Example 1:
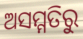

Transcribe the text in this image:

ଅସମ୍ମତିରୁ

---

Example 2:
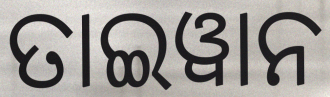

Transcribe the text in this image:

ତାଇୱାନ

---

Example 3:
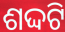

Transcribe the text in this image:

ଶଦ୍ଦଟି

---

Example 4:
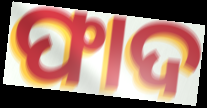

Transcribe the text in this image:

ଫାଦ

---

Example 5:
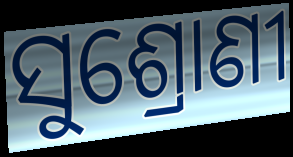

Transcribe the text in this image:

ସୁଶ୍ରୋଣୀ